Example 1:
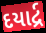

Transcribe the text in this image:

દયાર્દ્ર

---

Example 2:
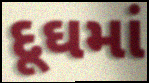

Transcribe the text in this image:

દૂઘમાં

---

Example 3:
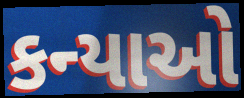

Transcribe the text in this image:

કન્યાઓ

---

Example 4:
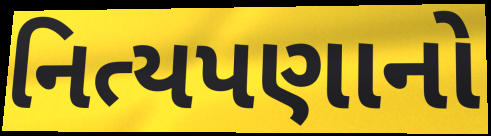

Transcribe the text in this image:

નિત્યપણાનો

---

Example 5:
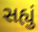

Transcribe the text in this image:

સહ્યું